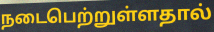
நடைபெற்றுள்ளதால்